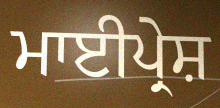
ਮਾਈਪ੍ਰੇਸ਼